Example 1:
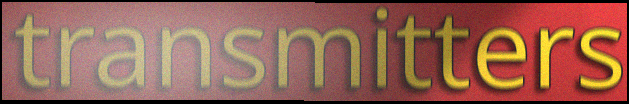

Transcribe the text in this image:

transmitters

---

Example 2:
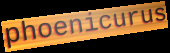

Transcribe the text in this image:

phoenicurus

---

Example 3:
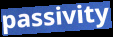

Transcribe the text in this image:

passivity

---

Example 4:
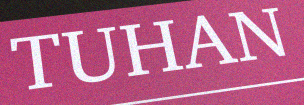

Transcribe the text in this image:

TUHAN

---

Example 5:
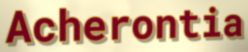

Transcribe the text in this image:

Acherontia